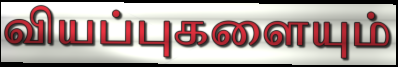
வியப்புகளையும்